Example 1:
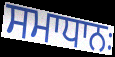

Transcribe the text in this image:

ਸਮਾਧਾਨਃ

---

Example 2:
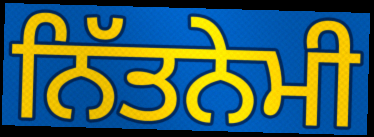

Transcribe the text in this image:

ਨਿੱਤਨੇਮੀ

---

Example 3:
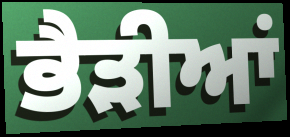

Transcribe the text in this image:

ਭੈੜੀਆਂ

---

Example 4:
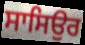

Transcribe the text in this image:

ਸਾਸਿਉਰ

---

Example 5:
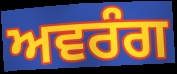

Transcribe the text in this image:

ਅਵਰੰਗ